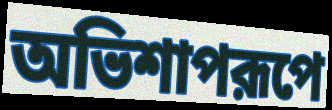
অভিশাপরূপে